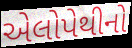
એલોપેથીનો